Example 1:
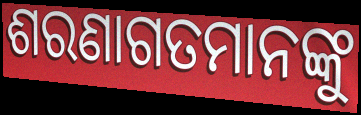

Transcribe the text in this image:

ଶରଣାଗତମାନଙ୍କୁ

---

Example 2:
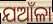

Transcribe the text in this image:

ଯଆଁଳା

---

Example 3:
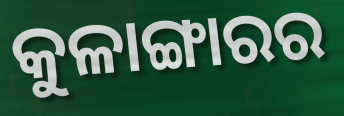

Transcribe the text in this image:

କୁଳାଙ୍ଗାରର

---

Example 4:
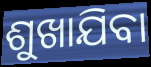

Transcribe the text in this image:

ଶୁଖାଯିବା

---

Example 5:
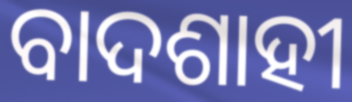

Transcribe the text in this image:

ବାଦଶାହୀ